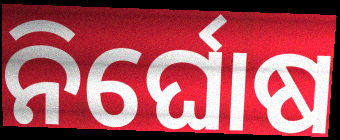
ନିର୍ଘୋଷ